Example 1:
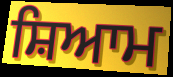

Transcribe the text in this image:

ਸ਼ਿਆਮ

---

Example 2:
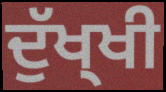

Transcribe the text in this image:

ਦੁੱਖ੍ਖੀ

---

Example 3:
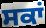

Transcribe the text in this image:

ਸਕਾਂ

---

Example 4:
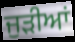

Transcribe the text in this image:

ਜੁੜੀਆਂ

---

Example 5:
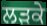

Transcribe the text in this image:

ਲੜਕੇ